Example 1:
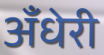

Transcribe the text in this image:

अँधेरी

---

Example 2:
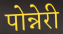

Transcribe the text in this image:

पोन्नेरी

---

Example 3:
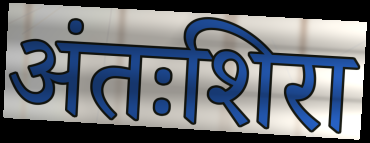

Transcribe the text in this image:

अंतःशिरा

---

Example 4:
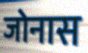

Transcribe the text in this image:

जोनास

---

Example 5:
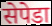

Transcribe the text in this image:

सेपेडा